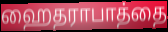
ஹைதராபாத்தை